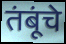
तंबूंचे